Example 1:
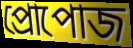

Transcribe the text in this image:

প্রোপোজ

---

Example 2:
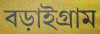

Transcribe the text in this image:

বড়াইগ্রাম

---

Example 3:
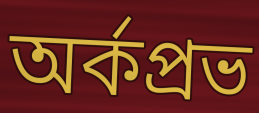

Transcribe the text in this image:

অর্কপ্রভ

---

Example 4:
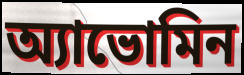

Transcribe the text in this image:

অ্যাভোমিন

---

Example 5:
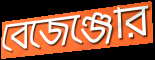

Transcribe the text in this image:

বেজেঞ্জোর